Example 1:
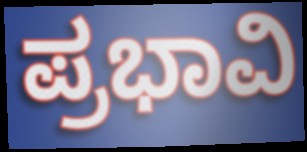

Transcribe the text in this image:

ಪ್ರಭಾವಿ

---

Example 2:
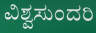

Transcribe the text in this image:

ವಿಶ್ವಸುಂದರಿ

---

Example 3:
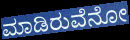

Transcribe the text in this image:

ಮಾಡಿರುವೆನೋ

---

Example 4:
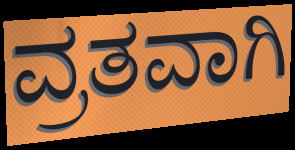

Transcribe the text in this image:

ವ್ರತವಾಗಿ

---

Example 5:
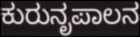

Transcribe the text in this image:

ಕುರುನೃಪಾಲನ